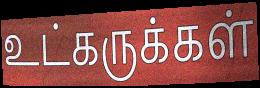
உட்கருக்கள்